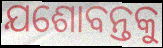
ଯଶୋବନ୍ତକୁ